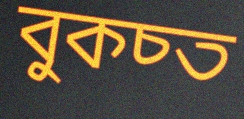
বুকচ্ত